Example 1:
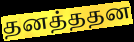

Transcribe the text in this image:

தனத்ததன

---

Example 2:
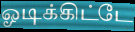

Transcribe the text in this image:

ஓடிக்கிட்டே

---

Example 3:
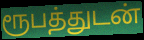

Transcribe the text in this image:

ரூபத்துடன்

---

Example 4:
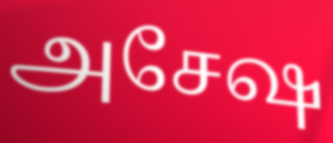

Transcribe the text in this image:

அசேஷ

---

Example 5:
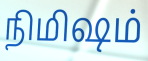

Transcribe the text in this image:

நிமிஷம்